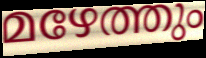
മഴേത്തും